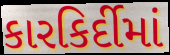
કારકિર્દીમાં